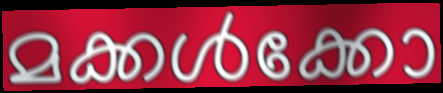
മക്കൾക്കോ